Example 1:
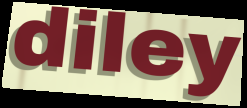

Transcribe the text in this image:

diley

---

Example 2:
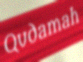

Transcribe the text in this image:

Qudamah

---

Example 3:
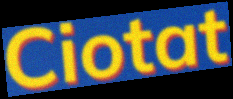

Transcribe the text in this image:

Ciotat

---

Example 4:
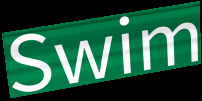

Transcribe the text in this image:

Swim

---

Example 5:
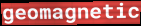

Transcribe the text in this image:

geomagnetic